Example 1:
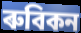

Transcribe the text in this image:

ৰুবিকন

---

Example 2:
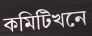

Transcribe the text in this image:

কমিটিখনে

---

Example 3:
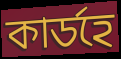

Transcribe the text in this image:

কাৰ্ডহে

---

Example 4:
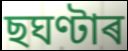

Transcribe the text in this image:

ছঘণ্টাৰ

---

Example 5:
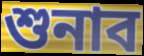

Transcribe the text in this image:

শুনাব